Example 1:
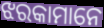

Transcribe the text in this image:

ଝରକାମାନେ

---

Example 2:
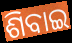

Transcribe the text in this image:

ଶିବାଇ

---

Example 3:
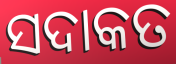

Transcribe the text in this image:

ସଦାକତ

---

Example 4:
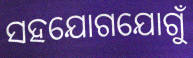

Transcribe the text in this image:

ସହଯୋଗଯୋଗୁଁ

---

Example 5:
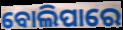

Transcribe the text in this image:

ବୋଲିପାରେ